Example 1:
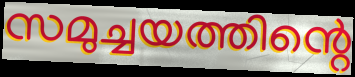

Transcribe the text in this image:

സമുച്ചയത്തിന്റെ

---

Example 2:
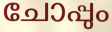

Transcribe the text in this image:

ചോപ്പും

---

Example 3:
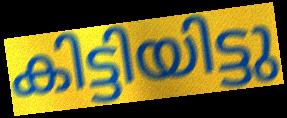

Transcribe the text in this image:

കിട്ടിയിട്ടു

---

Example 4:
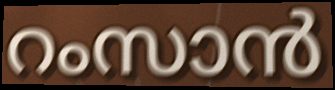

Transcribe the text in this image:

റംസാൻ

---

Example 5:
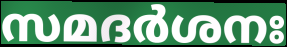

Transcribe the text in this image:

സമദർശനഃ